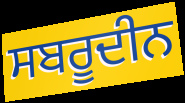
ਸਬਰੂਦੀਨ